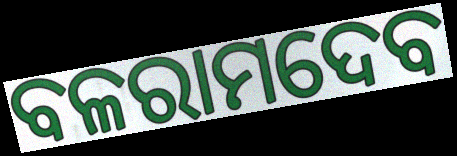
ବଳରାମଦେବ